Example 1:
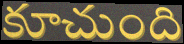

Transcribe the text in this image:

కూచుంది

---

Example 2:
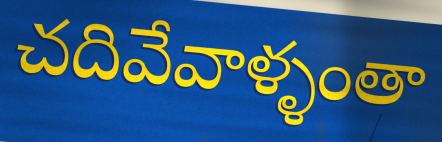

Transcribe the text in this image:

చదివేవాళ్ళంతా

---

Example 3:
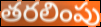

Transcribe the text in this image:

తరలింపు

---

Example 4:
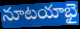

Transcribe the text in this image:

నూటయాభై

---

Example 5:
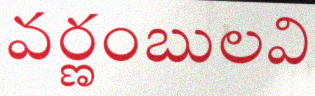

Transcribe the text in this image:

వర్ణంబులవి